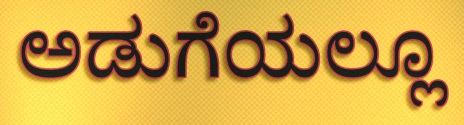
ಅಡುಗೆಯಲ್ಲೂ